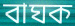
বাঘক